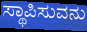
ಸ್ಥಾಪಿಸುವನು